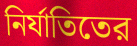
নির্যাতিতের